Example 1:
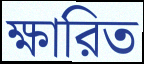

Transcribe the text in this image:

ক্ষারিত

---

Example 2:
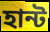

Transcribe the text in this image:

হান্ট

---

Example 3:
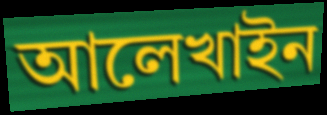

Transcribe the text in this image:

আলেখাইন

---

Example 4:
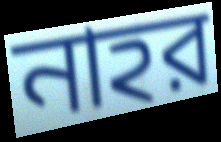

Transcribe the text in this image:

নাহর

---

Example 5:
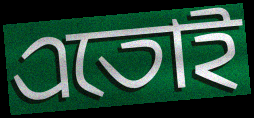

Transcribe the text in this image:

এতোই